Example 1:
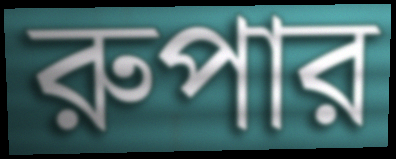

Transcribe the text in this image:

রুপার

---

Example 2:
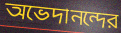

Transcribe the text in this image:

অভেদানন্দের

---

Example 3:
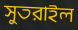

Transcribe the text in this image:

সুতরাইল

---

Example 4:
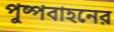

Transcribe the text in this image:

পুষ্পবাহনের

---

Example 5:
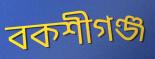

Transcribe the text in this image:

বকশীগঞ্জ